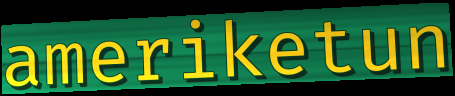
ameriketun